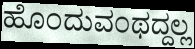
ಹೊಂದುವಂಥದ್ದಲ್ಲ